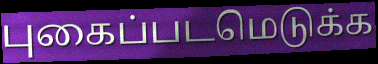
புகைப்படமெடுக்க